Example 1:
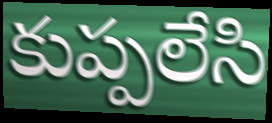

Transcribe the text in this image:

కుప్పలేసి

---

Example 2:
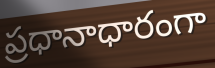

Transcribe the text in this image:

ప్రధానాధారంగా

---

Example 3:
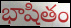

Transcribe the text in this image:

భాషితం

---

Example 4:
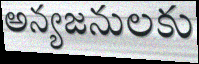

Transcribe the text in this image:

అన్యజనులకు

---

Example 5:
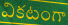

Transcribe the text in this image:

వికటంగా